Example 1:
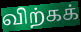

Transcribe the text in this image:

விற்கக்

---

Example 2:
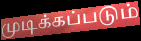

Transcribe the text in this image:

முடிக்கப்படும்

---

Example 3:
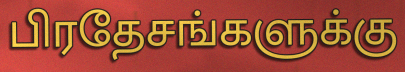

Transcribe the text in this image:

பிரதேசங்களுக்கு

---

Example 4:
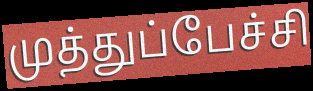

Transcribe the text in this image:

முத்துப்பேச்சி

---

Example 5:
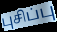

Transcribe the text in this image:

புசிப்பு